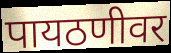
पायठणीवर